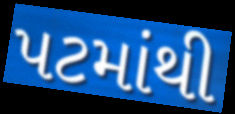
પટમાંથી